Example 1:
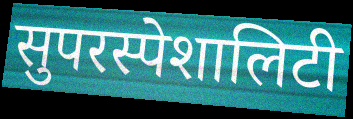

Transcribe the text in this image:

सुपरस्पेशालिटी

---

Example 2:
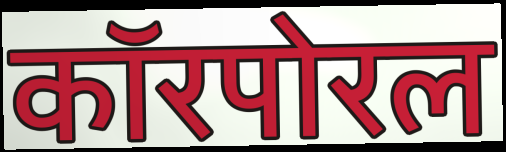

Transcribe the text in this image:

कॉरपोरल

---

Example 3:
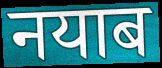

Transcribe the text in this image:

नयाब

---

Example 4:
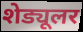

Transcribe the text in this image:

शेड्यूलर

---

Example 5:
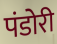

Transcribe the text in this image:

पंडोरी